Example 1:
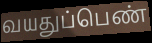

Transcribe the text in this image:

வயதுப்பெண்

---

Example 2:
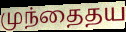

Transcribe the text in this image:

முந்தைதய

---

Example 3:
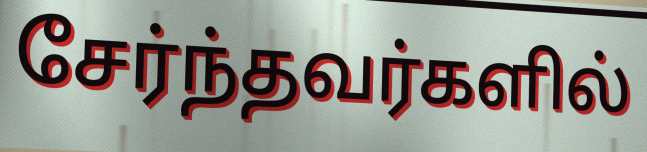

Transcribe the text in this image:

சேர்ந்தவர்களில்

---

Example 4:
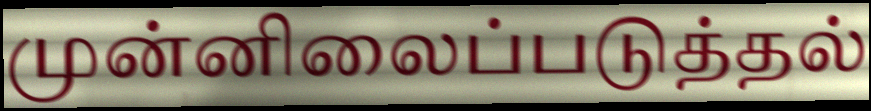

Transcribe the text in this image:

முன்னிலைப்படுத்தல்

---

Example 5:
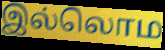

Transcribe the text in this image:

இல்லொம